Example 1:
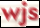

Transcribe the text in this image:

wjs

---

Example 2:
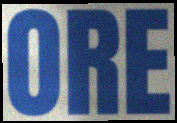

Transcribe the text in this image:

ORE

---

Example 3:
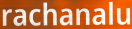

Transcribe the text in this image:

rachanalu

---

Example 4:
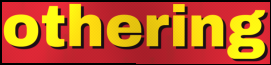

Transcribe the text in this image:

othering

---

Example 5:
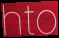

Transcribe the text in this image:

hto